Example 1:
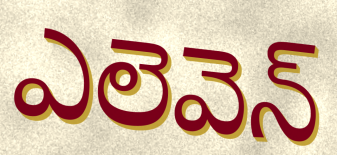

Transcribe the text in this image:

ఎలెవెన్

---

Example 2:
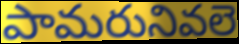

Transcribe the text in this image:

పామరునివలె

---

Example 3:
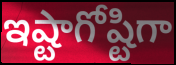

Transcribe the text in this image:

ఇష్టాగోష్టిగా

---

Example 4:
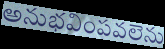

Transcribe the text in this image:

అనుభవింపవలెను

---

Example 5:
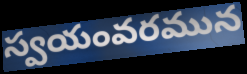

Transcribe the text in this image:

స్వయంవరమున